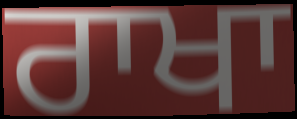
ਰਾਖਾ